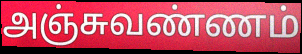
அஞ்சுவண்ணம்